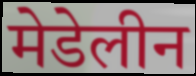
मेडेलीन